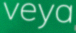
veya